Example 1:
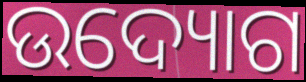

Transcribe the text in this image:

ଉଦ୍ୟୋଗ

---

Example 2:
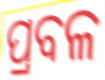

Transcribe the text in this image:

ପ୍ରବଳ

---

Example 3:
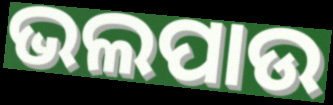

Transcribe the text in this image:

ଭଲପାଉ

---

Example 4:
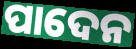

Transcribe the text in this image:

ପାଦେନ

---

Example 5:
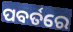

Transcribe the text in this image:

ପବର୍ତରେ